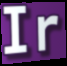
Ir